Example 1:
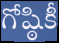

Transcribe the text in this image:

గోష్ఠికీ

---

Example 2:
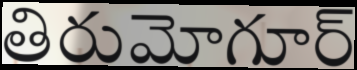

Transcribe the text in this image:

తిరుమోగూర్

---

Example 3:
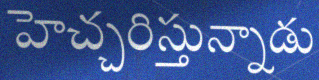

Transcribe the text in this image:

హెచ్చరిస్తున్నాడు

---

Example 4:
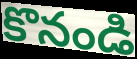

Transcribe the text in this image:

కొనండి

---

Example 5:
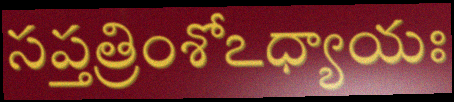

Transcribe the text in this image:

సప్తత్రింశోఽధ్యాయః